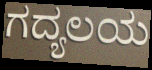
ಗದ್ಯಲಯ